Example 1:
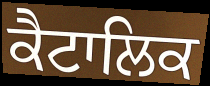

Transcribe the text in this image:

ਕੈਟਾਲਿਕ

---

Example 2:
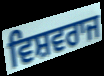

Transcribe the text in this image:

ਵਿਸ਼ਵਰਾਜ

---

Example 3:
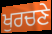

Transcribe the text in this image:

ਖੁਰਚਣੇ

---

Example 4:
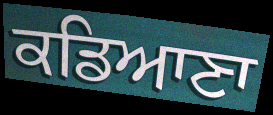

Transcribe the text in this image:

ਕਡਿਆਣਾ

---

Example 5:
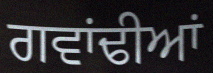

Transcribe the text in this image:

ਗਵਾਂਢੀਆਂ